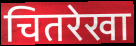
चितरेखा